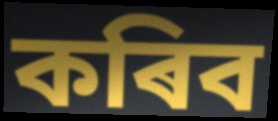
কৰিব